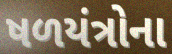
ષળયંત્રોના